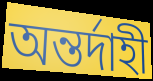
অন্তর্দাহী